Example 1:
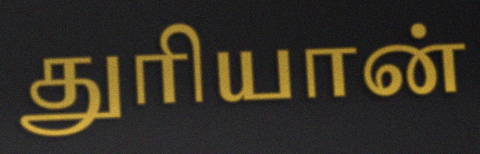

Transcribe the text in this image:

துரியான்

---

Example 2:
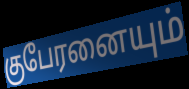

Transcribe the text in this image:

குபேரனையும்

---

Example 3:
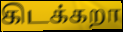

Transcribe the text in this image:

கிடக்கறா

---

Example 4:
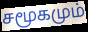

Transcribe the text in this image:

சமூகமும்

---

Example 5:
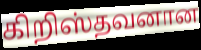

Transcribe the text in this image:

கிறிஸ்தவனான